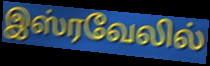
இஸ்ரவேலில்